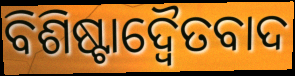
ବିଶିଷ୍ଟାଦ୍ଵୈତବାଦ